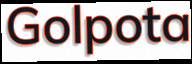
Golpota